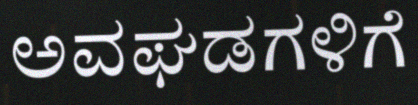
ಅವಘಡಗಳಿಗೆ